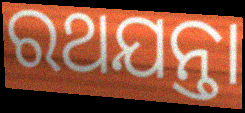
ରଥଯନ୍ତା